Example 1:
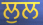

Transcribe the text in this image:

ਲੁਲ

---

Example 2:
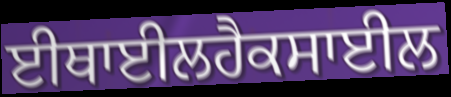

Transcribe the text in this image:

ਈਥਾਈਲਹੈਕਸਾਈਲ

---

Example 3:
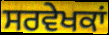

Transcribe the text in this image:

ਸਰਵੇਖਕਾਂ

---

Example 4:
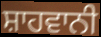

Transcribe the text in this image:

ਸ਼ਾਹਵਾਨੀ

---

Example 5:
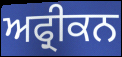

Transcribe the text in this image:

ਅਫ੍ਰੀਕਨ